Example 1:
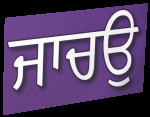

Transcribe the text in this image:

ਜਾਚਉ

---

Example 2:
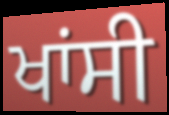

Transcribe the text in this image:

ਖਾਂਸੀ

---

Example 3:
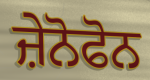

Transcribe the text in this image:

ਜ਼ੇਨੋਫੋਨ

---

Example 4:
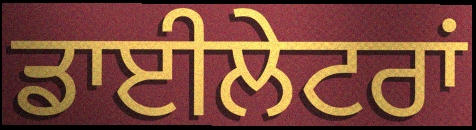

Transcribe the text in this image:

ਡਾਈਲੇਟਰਾਂ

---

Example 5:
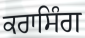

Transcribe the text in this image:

ਕਰਾਸਿੰਗ